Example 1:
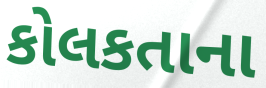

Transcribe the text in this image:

કોલકતાના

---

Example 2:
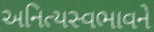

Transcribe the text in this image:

અનિત્યસ્વભાવને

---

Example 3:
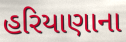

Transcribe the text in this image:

હરિયાણાના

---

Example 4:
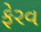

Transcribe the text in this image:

ફેરવ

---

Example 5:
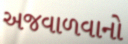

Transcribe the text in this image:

અજવાળવાનો